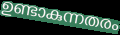
ഉണ്ടാകുന്നതരം